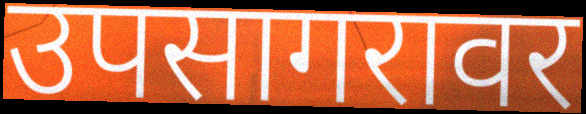
उपसागरावर